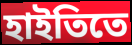
হাইতিতে